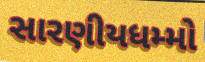
સારણીયધમ્મો